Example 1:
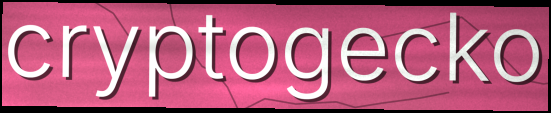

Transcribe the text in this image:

cryptogecko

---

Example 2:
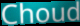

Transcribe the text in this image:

Choud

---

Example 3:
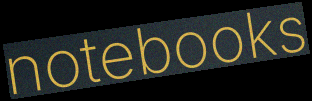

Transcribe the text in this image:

notebooks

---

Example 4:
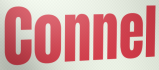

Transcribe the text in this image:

Connel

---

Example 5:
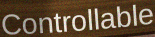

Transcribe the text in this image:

Controllable